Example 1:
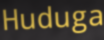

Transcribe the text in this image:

Huduga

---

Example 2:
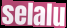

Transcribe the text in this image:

selalu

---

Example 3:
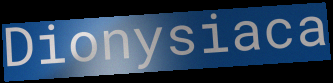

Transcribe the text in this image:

Dionysiaca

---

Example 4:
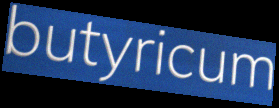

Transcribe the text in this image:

butyricum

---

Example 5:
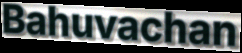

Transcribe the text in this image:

Bahuvachan